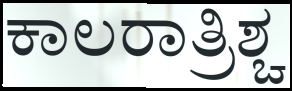
ಕಾಲರಾತ್ರಿಶ್ಚ